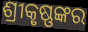
ଶ୍ରୀକୃଷ୍ଣଙ୍କର